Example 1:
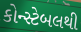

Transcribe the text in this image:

કોન્સ્ટેબલથી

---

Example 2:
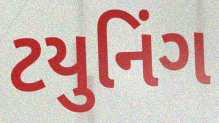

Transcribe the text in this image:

ટયુનિંગ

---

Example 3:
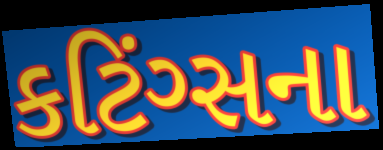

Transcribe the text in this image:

કટિંગ્સના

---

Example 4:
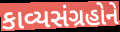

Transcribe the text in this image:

કાવ્યસંગ્રહોને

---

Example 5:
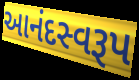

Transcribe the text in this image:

આનંદસ્વરૂપ